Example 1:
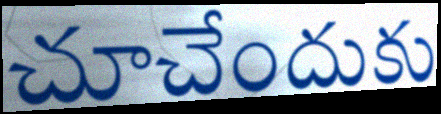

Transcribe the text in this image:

చూచేందుకు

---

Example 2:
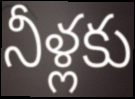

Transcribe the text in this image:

నీళ్లకు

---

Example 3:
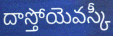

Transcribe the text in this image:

దాస్తోయెవస్కీ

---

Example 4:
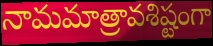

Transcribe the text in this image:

నామమాత్రావశిష్టంగా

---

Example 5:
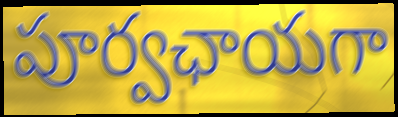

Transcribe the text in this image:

పూర్వఛాయగా